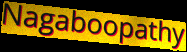
Nagaboopathy